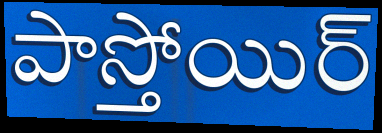
పాస్తోయిర్